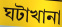
ঘটাখানা